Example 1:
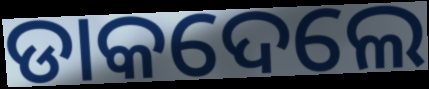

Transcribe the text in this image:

ଡାକଦେଲେ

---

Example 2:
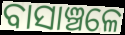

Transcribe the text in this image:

ବାସାଞ୍ଚଳେ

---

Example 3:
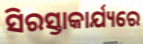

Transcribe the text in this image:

ସିରସ୍ତାକାର୍ଯ୍ୟରେ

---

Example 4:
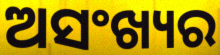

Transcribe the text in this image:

ଅସଂଖ୍ୟର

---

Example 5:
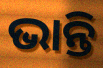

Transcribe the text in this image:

ଭାନ୍ତି